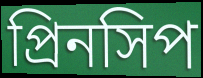
প্রিনসিপ